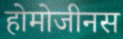
होमोजीनस